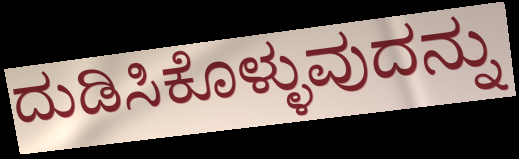
ದುಡಿಸಿಕೊಳ್ಳುವುದನ್ನು